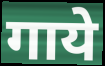
गाये